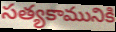
సత్యకామునికి